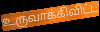
உருவாக்கிவிட்ட